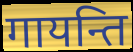
गायन्ति